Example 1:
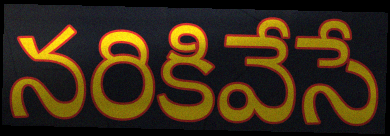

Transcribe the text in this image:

నరికివేసే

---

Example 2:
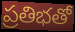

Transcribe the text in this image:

ప్రతిభతో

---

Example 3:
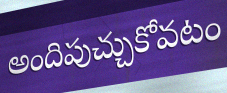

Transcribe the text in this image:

అందిపుచ్చుకోవటం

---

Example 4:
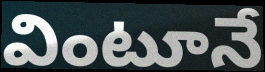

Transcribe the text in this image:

వింటూనే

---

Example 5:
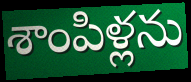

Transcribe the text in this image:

శాంపిళ్లను